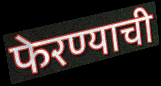
फेरण्याची